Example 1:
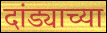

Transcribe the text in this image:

दांड्याच्या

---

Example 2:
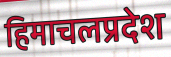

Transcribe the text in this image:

हिमाचलप्रदेश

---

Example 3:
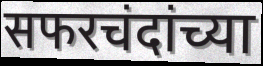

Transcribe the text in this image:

सफरचंदांच्या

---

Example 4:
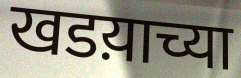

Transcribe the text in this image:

खडय़ाच्या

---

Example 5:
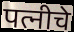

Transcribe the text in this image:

पत्‍नीचे